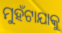
ମୁହଁଟାଯାକୁ